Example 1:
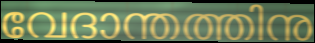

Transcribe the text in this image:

വേദാന്തത്തിനു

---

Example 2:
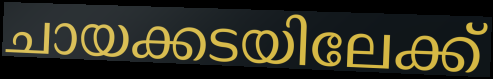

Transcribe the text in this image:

ചായക്കടയിലേക്ക്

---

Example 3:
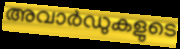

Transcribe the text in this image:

അവാർഡുകളുടെ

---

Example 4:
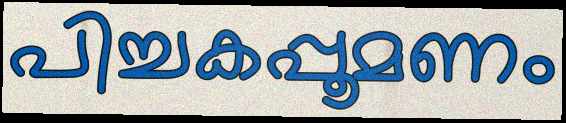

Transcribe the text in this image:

പിച്ചകപ്പൂമണം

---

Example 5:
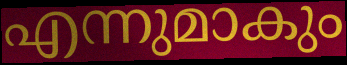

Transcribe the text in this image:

എന്നുമാകും